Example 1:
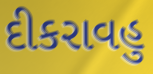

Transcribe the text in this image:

દીકરાવહુ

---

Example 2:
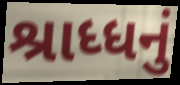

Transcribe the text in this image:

શ્રાધ્ધનું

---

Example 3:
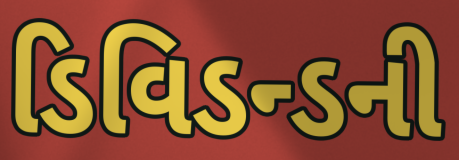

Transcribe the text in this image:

ડિવિડન્ડની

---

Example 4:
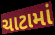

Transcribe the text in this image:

ચાટામાં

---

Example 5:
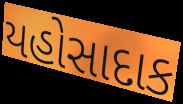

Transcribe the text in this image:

યહોસાદાક